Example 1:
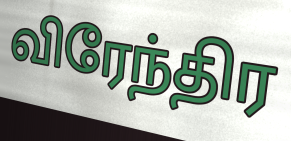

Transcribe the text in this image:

விரேந்திர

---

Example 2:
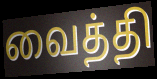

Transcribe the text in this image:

வைத்தி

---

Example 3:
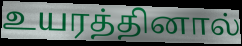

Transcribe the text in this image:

உயரத்தினால்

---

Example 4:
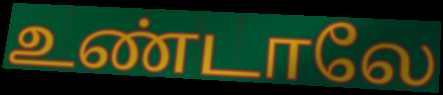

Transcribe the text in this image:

உண்டாலே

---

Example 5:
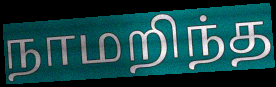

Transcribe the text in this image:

நாமறிந்த